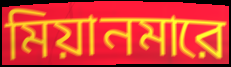
মিয়ানমারে